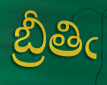
బ్రీతిఁ